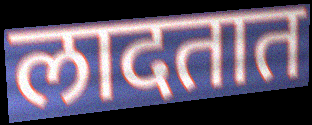
लादतात